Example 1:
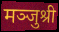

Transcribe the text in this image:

मञ्जुश्री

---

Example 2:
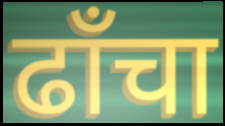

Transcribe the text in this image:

ढाँचा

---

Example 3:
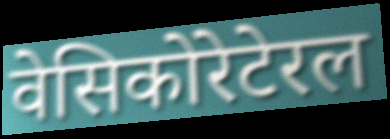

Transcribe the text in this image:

वेसिकोरेटेरल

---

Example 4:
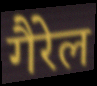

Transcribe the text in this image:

गैरेल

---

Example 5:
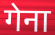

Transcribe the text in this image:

गेना